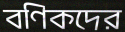
বণিকদের